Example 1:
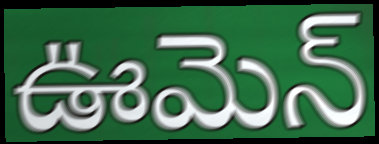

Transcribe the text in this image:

ఊమెన్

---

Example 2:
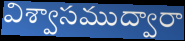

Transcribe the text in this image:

విశ్వాసముద్వారా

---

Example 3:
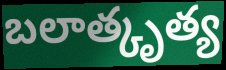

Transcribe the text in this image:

బలాత్కృత్య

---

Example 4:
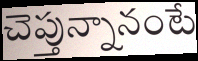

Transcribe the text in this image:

చెప్తున్నానంటే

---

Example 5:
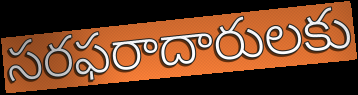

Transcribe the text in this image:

సరఫరాదారులకు